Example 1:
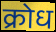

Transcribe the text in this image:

क्रोध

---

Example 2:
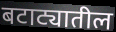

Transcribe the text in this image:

बटाट्यातील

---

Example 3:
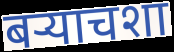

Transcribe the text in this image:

बर्‍याचशा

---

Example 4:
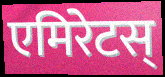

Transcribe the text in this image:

एमिरेटस्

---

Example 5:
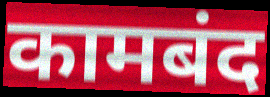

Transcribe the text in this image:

कामबंद